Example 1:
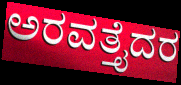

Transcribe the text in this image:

ಅರವತ್ತೈದರ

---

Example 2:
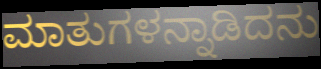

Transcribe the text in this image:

ಮಾತುಗಳನ್ನಾಡಿದನು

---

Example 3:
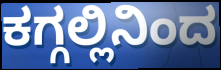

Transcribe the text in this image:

ಕಗ್ಗಲ್ಲಿನಿಂದ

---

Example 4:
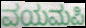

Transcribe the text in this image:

ವಯಮಪಿ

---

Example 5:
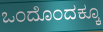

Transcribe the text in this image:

ಒಂದೊಂದಕ್ಕೂ